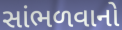
સાંભળવાનો